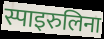
स्पाइरुलिना